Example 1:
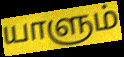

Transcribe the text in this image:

யாளும்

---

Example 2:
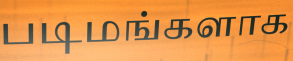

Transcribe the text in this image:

படிமங்களாக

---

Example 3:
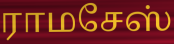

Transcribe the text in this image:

ராமசேஸ்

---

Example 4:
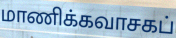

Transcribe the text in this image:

மாணிக்கவாசகப்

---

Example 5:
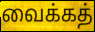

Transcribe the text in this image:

வைக்கத்